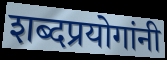
शब्दप्रयोगांनी